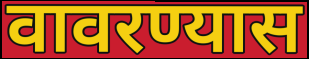
वावरण्यास